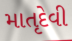
માતૃદેવી